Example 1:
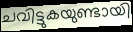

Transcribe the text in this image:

ചവിട്ടുകയുണ്ടായി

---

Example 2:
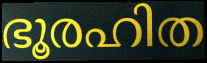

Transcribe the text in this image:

ഭൂരഹിത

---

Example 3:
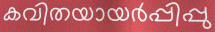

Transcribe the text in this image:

കവിതയായർപ്പിപ്പു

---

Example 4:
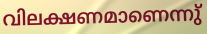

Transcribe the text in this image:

വിലക്ഷണമാണെന്നു്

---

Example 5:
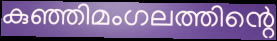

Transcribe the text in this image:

കുഞ്ഞിമംഗലത്തിന്റെ